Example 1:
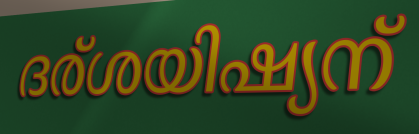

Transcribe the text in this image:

ദര്ശയിഷ്യന്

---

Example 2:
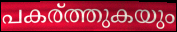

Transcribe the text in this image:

പകര്ത്തുകയും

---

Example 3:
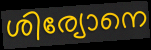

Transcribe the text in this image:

ശിര്യോനെ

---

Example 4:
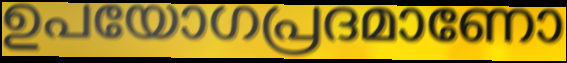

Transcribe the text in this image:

ഉപയോഗപ്രദമാണോ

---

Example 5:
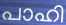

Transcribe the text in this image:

പാഹി